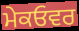
ਮੇਕਓਵਰ